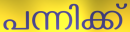
പന്നിക്ക്